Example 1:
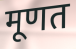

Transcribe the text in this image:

मूणत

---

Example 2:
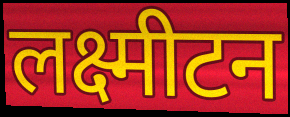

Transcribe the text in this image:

लक्ष्मीटन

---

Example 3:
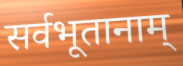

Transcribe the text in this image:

सर्वभूतानाम्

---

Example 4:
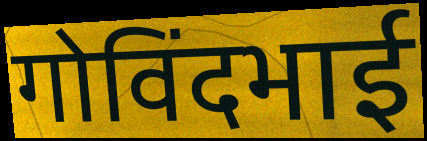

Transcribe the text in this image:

गोविंदभाई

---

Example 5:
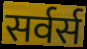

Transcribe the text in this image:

सर्वर्स